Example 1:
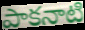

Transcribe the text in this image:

పాకనాటి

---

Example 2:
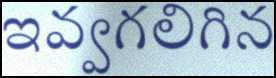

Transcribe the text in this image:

ఇవ్వగలిగిన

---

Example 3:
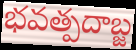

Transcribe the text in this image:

భవత్పదాబ్జ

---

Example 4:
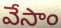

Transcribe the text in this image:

వేసాం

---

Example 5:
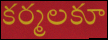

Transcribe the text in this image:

కర్మలకూ